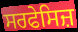
ਸਰਫੇਸਿਜ਼